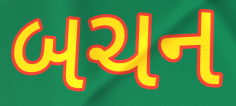
બચન